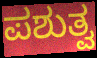
ಪಶುತ್ವ